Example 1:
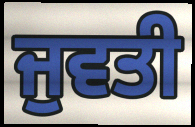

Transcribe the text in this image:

ਜੁਵਤੀ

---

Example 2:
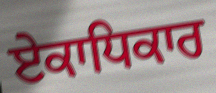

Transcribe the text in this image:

ਏਕਾਧਿਕਾਰ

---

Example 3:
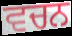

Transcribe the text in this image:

ਵਚਨ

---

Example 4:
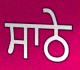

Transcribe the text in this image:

ਸਾਠੇ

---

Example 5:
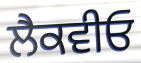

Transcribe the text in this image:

ਲੈਕਵੀਓ